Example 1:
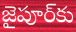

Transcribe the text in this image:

జైపూర్‌కు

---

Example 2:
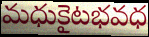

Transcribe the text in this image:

మధుకైటభవధ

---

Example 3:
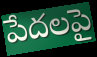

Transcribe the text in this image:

పేదలపై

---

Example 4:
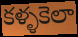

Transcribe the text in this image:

కళ్ళకెలా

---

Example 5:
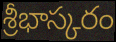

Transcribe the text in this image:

శ్రీభాస్కరం